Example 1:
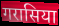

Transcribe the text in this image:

गरासिया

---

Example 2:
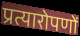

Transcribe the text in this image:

प्रत्यारोपणों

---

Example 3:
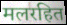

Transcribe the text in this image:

मलरहित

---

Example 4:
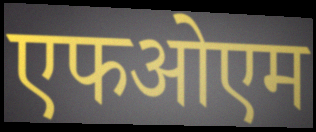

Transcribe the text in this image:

एफओएम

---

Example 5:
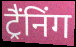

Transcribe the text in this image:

ट्रैंनिंग